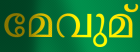
മേവുമ്